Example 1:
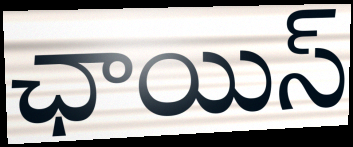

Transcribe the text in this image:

ఛాయిస్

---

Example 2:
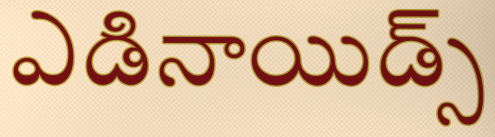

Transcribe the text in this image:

ఎడినాయిడ్స్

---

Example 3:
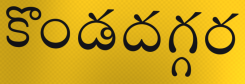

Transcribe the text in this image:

కొండదగ్గర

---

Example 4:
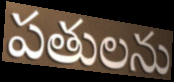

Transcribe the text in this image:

పతులను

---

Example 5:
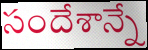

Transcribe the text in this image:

సందేశాన్నే